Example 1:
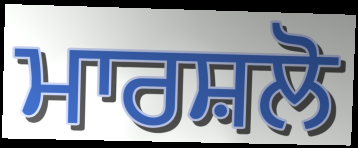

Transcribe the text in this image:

ਮਾਰਸ਼ਲੋ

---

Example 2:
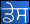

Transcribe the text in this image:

ਡੇਸ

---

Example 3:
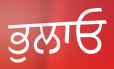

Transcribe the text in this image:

ਭੁਲਾਓ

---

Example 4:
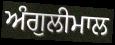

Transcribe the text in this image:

ਅੰਗੁਲੀਮਾਲ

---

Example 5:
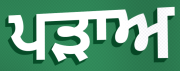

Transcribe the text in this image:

ਪਡ਼ਾਅ